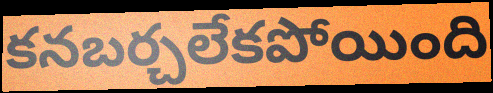
కనబర్చలేకపోయింది